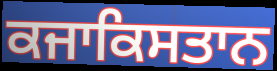
ਕਜਾਕਿਸਤਾਨ